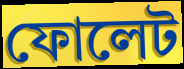
ফোলেট